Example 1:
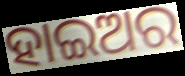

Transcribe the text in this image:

ହାଇଅର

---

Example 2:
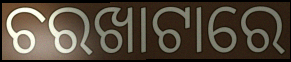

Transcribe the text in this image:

ଚରଖାଟାରେ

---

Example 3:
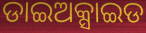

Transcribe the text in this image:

ଡାଇଅକ୍ସାଇଡ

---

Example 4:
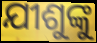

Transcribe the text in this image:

ଯୀଶୁଙ୍କୁ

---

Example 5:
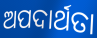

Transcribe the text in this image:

ଅପଦାର୍ଥତା